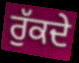
ਰੁੱਕਦੇ